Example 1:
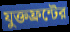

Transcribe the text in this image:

যুক্তফ্রন্টের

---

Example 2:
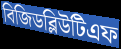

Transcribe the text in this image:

বিজিডব্লিউটিএফ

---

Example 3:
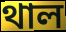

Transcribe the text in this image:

থাল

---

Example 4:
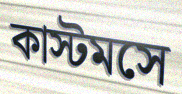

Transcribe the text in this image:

কাস্টমসে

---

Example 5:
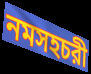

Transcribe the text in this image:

নমসহচরী